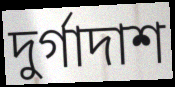
দুর্গাদাশ